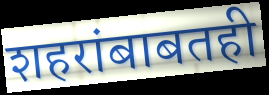
शहरांबाबतही